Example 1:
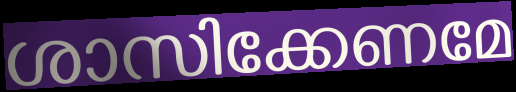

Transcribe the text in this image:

ശാസിക്കേണമേ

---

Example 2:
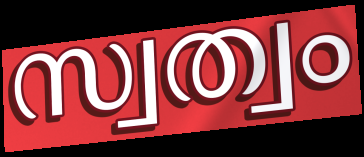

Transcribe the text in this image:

സ്വത്വം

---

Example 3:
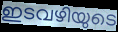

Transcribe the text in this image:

ഇടവഴിയുടെ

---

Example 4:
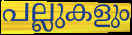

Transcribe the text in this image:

പല്ലുകളും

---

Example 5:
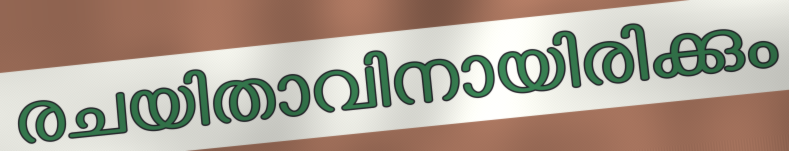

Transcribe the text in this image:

രചയിതാവിനായിരിക്കും